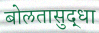
बोलतासुद्धा